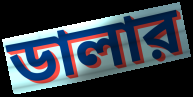
ডালার